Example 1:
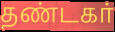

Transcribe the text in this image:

தண்டகர்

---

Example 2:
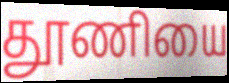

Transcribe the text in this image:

தூணியை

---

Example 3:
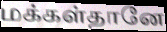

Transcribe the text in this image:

மக்கள்தானே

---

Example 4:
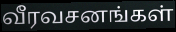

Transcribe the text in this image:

வீரவசனங்கள்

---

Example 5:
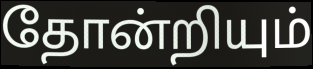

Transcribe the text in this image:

தோன்றியும்